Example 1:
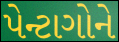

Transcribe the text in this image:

પેન્ટાગોને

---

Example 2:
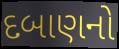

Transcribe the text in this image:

દબાણનો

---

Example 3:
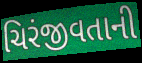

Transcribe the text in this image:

ચિરંજીવતાની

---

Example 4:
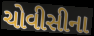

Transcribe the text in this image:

ચોવીસીના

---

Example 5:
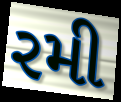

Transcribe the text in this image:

રમી